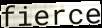
fierce